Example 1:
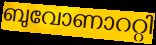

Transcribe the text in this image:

ബുവോണാററ്റി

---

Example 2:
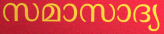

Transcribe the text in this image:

സമാസാദ്യ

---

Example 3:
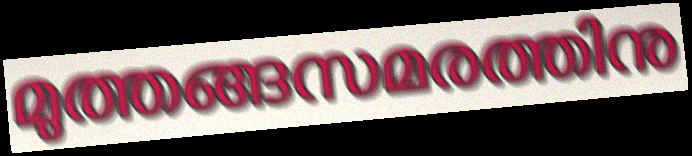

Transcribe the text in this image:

മുത്തങ്ങസമരത്തിനു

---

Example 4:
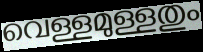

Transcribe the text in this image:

വെള്ളമുള്ളതും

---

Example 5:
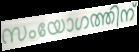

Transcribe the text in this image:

സംയോഗത്തിന്